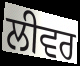
ਲੀਵਰ